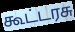
கூட்டரசு